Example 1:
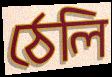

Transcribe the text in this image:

ঠেলি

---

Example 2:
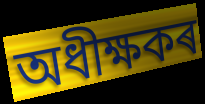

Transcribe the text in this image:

অধীক্ষকৰ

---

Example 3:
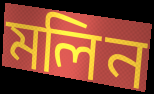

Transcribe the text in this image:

মলিন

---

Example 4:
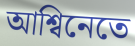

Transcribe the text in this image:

আশ্বিনেতে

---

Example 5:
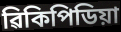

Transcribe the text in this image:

ৱিকিপিডিয়া